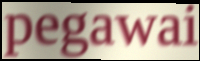
pegawai